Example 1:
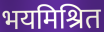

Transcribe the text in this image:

भयमिश्रित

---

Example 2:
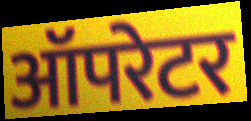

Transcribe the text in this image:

ऑपरेटर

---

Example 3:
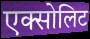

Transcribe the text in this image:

एक्सोलिट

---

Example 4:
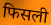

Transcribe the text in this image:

फिसली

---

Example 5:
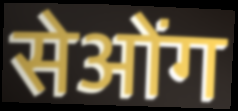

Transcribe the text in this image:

सेओंग